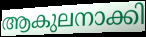
ആകുലനാക്കി